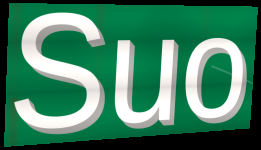
Suo